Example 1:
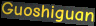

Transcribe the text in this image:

Guoshiguan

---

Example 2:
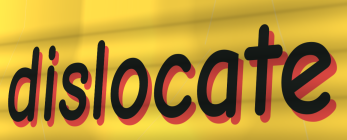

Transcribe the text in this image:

dislocate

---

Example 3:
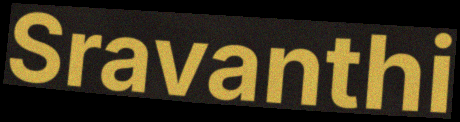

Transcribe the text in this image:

Sravanthi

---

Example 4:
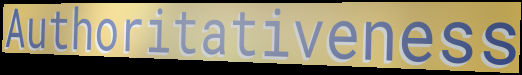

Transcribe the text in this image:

Authoritativeness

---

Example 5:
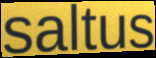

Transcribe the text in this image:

saltus